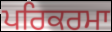
ਪਰਿਕਰਮਾ